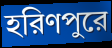
হরিণপুরে